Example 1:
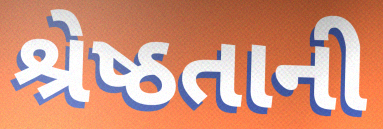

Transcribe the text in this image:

શ્રેષ્ઠતાની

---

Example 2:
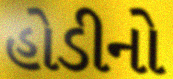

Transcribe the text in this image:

હોડીનો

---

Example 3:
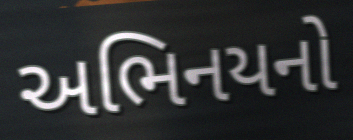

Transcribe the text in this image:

અભિનયનો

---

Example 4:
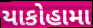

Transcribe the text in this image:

યાકોહામા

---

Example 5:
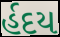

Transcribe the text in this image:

ર્હદય